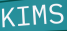
KIMS